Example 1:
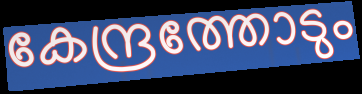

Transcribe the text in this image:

കേന്ദ്രത്തോടും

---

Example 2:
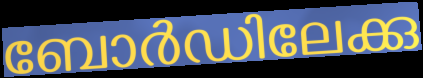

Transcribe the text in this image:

ബോർഡിലേക്കു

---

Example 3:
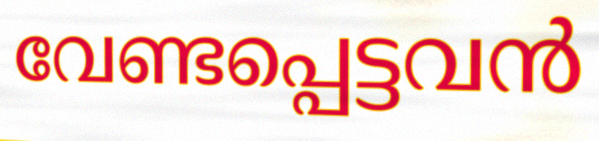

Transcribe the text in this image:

വേണ്ടപ്പെട്ടവൻ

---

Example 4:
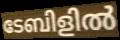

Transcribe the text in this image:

ടേബിളിൽ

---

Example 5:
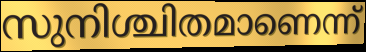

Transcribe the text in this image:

സുനിശ്ചിതമാണെന്ന്